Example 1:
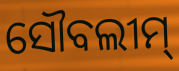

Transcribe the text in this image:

ସୌବଲୀମ୍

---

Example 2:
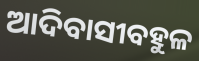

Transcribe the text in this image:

ଆଦିବାସୀବହୁଳ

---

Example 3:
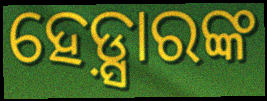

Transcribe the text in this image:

ହେଡ଼୍ସାରଙ୍କ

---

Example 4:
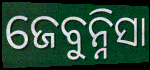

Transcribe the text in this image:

ଜେବୁନ୍ନିସା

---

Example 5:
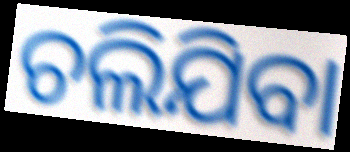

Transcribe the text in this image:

ଚଲିଯିବା